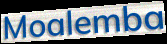
Moalemba